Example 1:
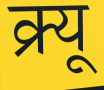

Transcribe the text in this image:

क्र्यू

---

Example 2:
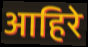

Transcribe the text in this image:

आहिरे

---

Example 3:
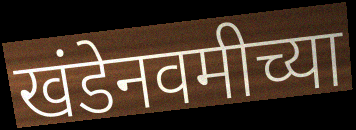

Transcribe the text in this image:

खंडेनवमीच्या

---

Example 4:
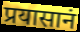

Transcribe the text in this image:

प्रयासानं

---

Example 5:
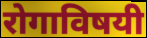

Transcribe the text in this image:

रोगाविषयी